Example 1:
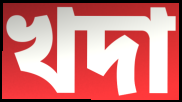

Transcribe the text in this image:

খদা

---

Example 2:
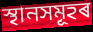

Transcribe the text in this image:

স্থানসমূহৰ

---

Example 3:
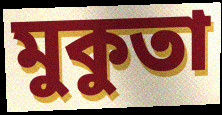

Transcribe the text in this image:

মুকুতা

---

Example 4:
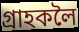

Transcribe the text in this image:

গ্ৰাহকলৈ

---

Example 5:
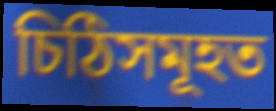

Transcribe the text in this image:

চিঠিসমূহত